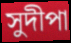
সুদীপা